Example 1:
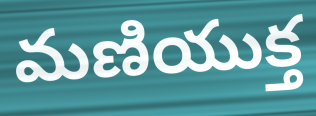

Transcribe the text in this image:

మణియుక్త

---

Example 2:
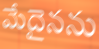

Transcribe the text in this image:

మేదైనను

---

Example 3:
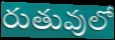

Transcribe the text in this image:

రుతువులో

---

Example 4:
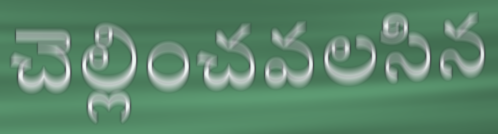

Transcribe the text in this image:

చెల్లించవలసిన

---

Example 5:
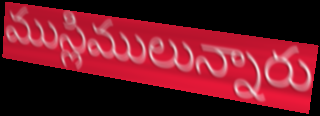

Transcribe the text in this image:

ముస్లిములున్నారు